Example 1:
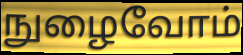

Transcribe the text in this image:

நுழைவோம்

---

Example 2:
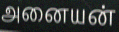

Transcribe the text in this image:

அனையன்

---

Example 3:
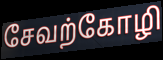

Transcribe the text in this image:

சேவற்கோழி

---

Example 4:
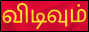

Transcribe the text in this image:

விடிவும்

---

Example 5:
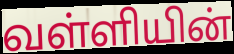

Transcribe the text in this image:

வள்ளியின்